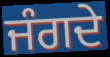
ਜੰਗਦੇ